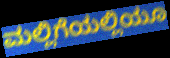
ಮಲ್ಲಿಗೆಯಲ್ಲಿಯೂ